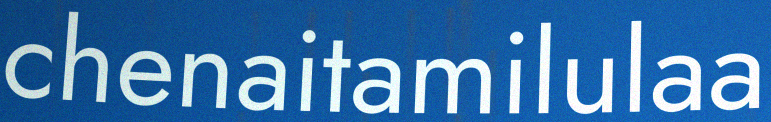
chenaitamilulaa